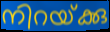
നിറയ്‌ക്കു